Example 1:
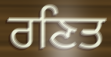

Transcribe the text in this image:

ਰਣਿਤ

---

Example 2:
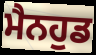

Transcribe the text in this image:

ਮੈਨਹੁਡ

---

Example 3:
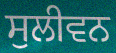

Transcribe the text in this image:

ਸੁਲੀਵਨ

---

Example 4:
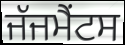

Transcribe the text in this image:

ਜੱਜਮੈਂਟਸ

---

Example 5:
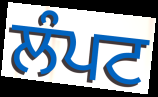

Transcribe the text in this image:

ਲੰਪਟ